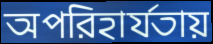
অপরিহার্যতায়